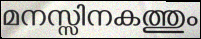
മനസ്സിനകത്തും